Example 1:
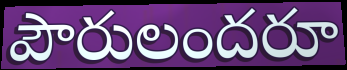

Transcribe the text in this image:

పౌరులందరూ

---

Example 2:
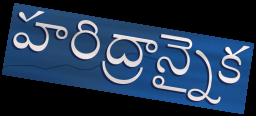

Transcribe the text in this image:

హరిద్రాన్నైక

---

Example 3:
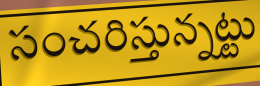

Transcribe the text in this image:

సంచరిస్తున్నట్టు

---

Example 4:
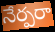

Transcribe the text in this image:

నేర్పరా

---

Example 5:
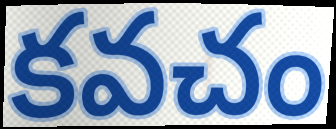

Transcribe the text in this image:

కవచం